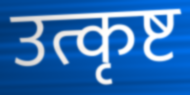
उत्कृष्ट